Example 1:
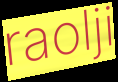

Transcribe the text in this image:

raolji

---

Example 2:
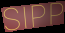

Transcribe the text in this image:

SIPP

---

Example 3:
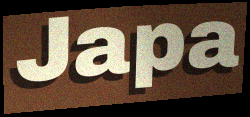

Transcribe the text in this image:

Japa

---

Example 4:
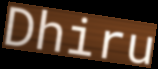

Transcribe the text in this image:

Dhiru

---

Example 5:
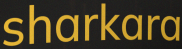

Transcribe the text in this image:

sharkara